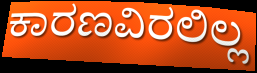
ಕಾರಣವಿರಲಿಲ್ಲ